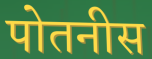
पोतनीस